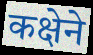
कक्षेने